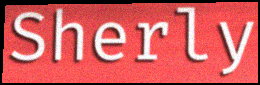
Sherly